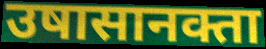
उषासानक्ता